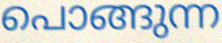
പൊങ്ങുന്ന